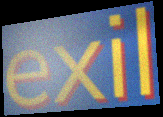
exil